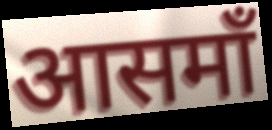
आसमाँ